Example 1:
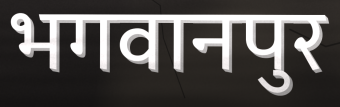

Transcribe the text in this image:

भगवानपुर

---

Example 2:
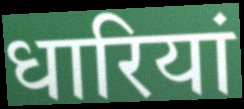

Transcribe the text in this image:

धारियां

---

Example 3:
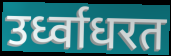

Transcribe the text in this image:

उर्ध्वाधरत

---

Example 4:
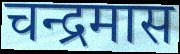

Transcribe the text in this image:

चन्द्रमास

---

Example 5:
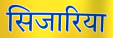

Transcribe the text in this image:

सिजारिया